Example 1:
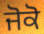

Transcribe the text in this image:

ਜੋਕੋ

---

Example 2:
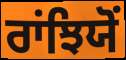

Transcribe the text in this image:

ਰਾਂਝਿਯੋਂ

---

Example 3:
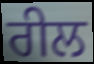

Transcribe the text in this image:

ਰੀਲ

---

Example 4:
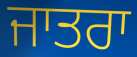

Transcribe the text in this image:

ਜਾਤਰਾ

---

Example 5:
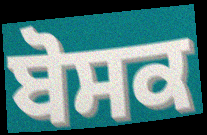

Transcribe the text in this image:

ਬੋਸਕ